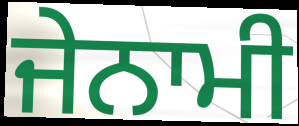
ਜੇਨਾਮੀ